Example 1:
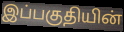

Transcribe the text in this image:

இப்பகுதியின்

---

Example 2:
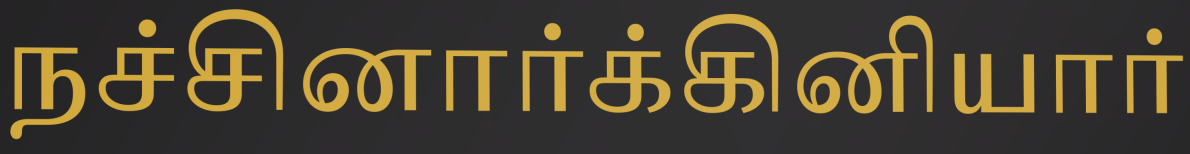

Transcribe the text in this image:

நச்சினார்க்கினியார்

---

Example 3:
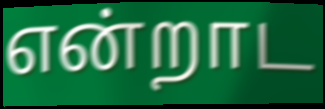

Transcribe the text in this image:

என்றாட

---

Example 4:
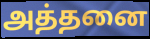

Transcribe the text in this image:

அத்தனை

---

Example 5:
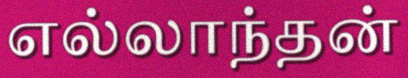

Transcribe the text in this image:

எல்லாந்தன்